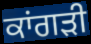
ਕਾਂਗੜੀ